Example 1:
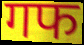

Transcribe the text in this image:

गफ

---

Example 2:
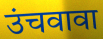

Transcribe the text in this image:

उंचवावा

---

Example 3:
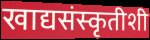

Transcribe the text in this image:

खाद्यसंस्कृतीशी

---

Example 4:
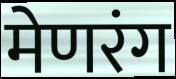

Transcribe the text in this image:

मेणरंग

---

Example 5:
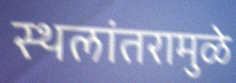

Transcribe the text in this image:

स्थलांतरामुळे